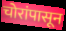
चोरांपासून